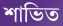
শাভিত